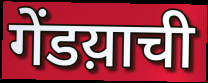
गेंडय़ाची